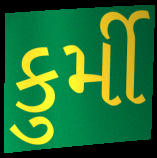
કુર્મી